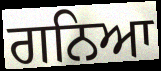
ਗਨਿਆ